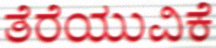
ತೆರೆಯುವಿಕೆ